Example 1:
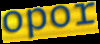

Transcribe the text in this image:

opor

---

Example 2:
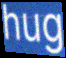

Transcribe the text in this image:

hug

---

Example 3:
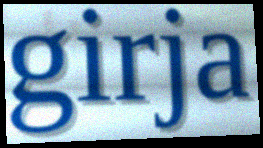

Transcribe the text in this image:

girja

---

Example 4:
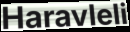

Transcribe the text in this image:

Haravleli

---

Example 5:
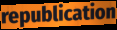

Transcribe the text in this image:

republication